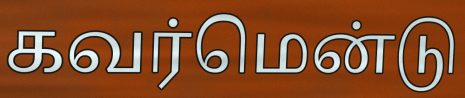
கவர்மென்டு